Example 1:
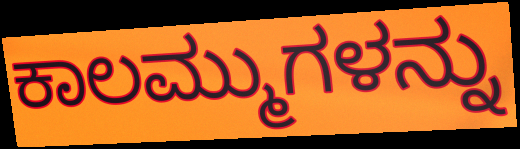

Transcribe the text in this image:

ಕಾಲಮ್ಮುಗಳನ್ನು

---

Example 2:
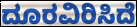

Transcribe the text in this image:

ದೂರವಿರಿಸಿದೆ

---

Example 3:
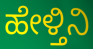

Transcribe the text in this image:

ಹೇಳ್ತಿನಿ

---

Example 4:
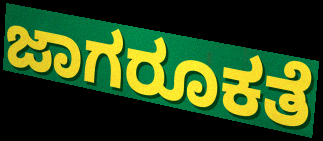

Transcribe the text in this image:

ಜಾಗರೂಕತೆ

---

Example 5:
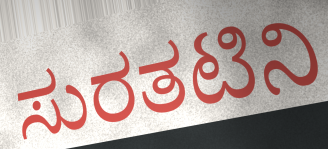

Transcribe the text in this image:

ಸುರತಟಿನಿ